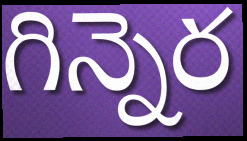
గిన్నెర